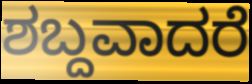
ಶಬ್ದವಾದರೆ